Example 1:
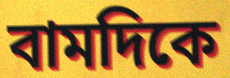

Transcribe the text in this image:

বামদিকে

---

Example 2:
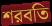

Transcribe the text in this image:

শরবতি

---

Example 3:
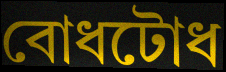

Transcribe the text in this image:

বোধটোধ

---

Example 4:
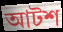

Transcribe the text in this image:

আটশ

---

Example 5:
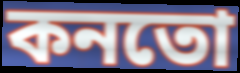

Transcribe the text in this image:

কনতো